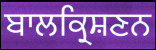
ਬਾਲਕ੍ਰਿਸ਼ਣਨ